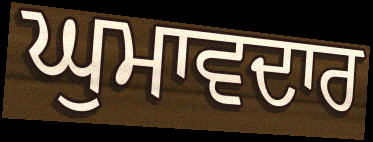
ਘੁਮਾਵਦਾਰ